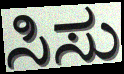
ಸಿಸು